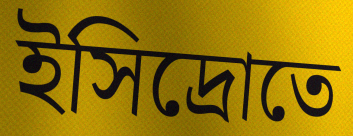
ইসিদ্রোতে